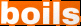
boils